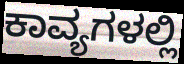
ಕಾವ್ಯಗಳಲ್ಲಿ